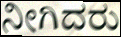
ನೀಗಿದರು